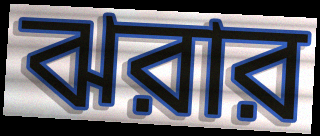
ঝরার